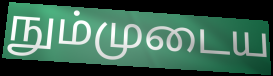
நும்முடைய